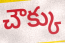
చౌక్కు